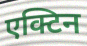
एक्टिन